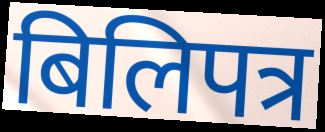
बिलिपत्र